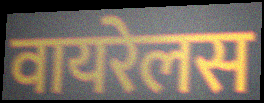
वायरेलस